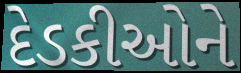
દેડકીઓને